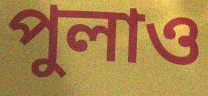
পুলাও